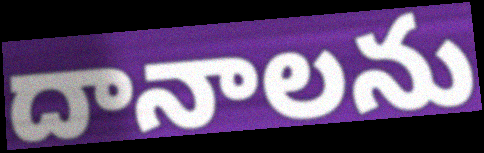
దానాలను